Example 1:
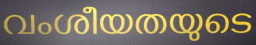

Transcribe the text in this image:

വംശീയതയുടെ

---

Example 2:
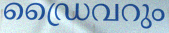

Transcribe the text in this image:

ഡ്രൈവറും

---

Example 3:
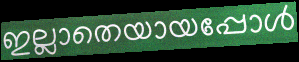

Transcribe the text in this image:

ഇല്ലാതെയായപ്പോൾ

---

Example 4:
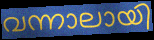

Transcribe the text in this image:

വന്നാലായി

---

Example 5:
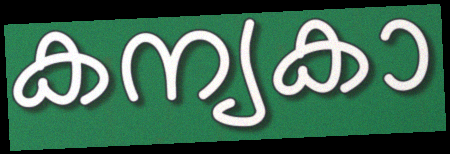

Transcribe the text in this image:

കന്യകാ